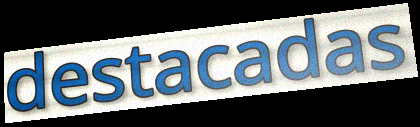
destacadas